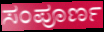
ಸಂಪೂರ್ಣ